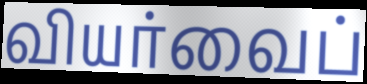
வியர்வைப்